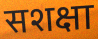
सशक्षा